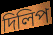
দিলিপ